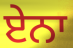
ਏਨਾ